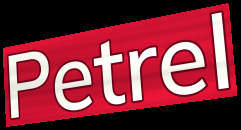
Petrel